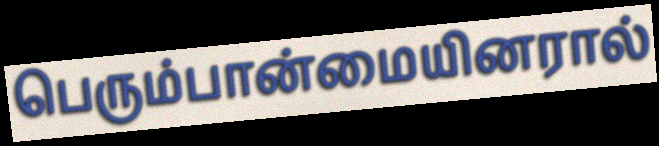
பெரும்பான்மையினரால்